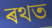
ৰথত